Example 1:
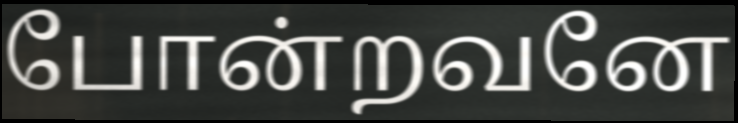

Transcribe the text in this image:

போன்றவனே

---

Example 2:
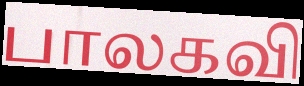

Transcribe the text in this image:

பாலகவி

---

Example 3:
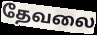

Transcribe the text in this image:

தேவலை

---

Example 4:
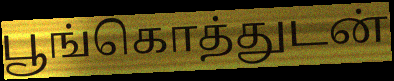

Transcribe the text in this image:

பூங்கொத்துடன்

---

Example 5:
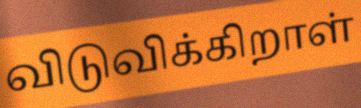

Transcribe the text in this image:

விடுவிக்கிறாள்